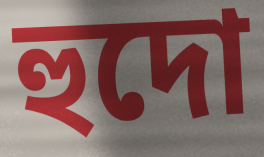
হুদো